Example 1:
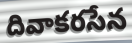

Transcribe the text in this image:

దివాకరసేన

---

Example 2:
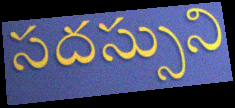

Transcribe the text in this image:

సదస్సుని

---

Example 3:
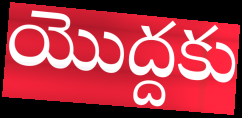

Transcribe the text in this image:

యొద్దకు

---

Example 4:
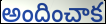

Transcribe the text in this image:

అందించాక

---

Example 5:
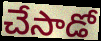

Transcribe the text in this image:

చేసాడో